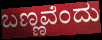
ಬಣ್ಣವೆಂದು